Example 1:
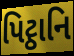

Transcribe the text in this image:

પિટ્ઠાનિ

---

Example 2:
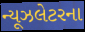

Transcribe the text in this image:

ન્યૂઝલેટરના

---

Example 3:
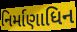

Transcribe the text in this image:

નિર્માણાધિન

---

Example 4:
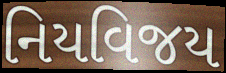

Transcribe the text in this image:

નિયવિજય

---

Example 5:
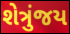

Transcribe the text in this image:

શેત્રુંજય